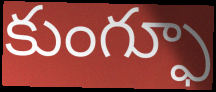
కుంగ్ఫూ